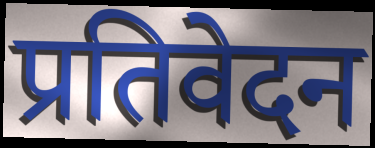
प्रतिवेदन